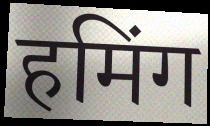
हमिंग